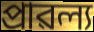
প্ৰাৱল্য